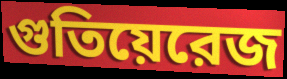
গুতিয়েরেজ